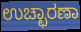
ಉಚ್ಛಾರಣಾ